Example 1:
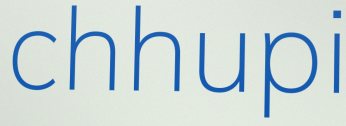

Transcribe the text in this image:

chhupi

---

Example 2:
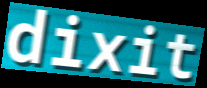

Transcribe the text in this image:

dixit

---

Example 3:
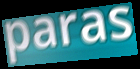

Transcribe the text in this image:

paras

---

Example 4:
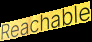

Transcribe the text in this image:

Reachable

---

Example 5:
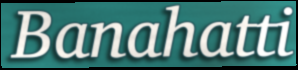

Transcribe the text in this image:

Banahatti